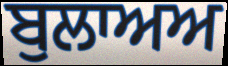
ਬੁਲਾਅਅ